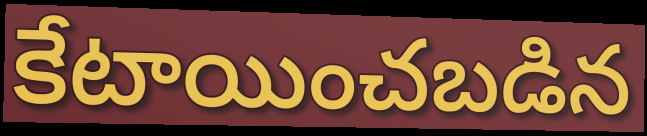
కేటాయించబడిన